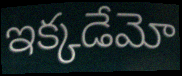
ఇక్కడేమో